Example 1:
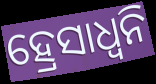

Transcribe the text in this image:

ହ୍ରେସାଧ୍ୱନି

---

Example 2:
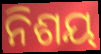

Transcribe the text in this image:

ନିଶୟ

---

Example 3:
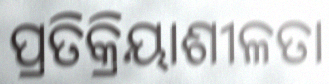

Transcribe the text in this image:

ପ୍ରତିକ୍ରିୟାଶୀଳତା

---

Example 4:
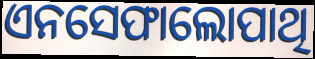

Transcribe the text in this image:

ଏନସେଫାଲୋପାଥି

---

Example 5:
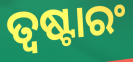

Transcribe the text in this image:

ତ୍ୱଷ୍ଟାରଂ